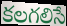
కలగలిసే